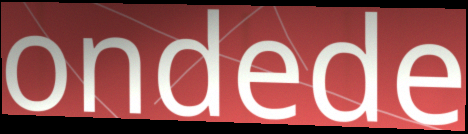
ondede